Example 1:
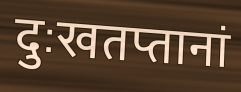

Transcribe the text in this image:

दुःखतप्तानां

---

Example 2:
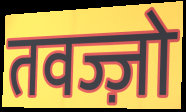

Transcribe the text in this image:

तवज्ज़ो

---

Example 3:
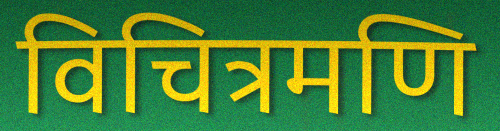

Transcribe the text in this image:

विचित्रमणि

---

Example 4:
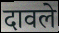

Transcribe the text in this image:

दावले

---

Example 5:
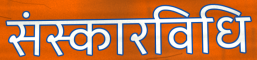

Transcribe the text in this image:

संस्कारविधि